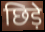
छिड़े